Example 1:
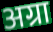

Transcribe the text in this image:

अग्रा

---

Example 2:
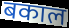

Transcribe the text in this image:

बकाल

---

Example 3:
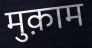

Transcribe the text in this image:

मुक़ाम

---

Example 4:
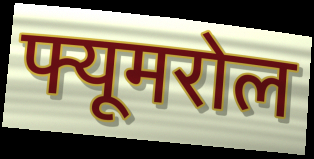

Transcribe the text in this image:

फ्यूमरोल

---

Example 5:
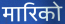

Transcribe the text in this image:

मारिको